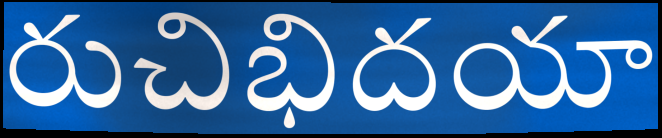
రుచిభిదయా